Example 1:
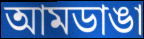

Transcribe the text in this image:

আমডাঙা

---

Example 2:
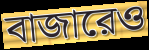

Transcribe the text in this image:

বাজারেও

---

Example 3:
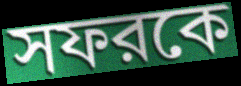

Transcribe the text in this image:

সফরকে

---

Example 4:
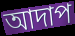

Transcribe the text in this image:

আদাপ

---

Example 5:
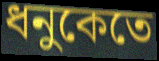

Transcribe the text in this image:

ধনুকেতে